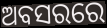
ଅବସରରେ